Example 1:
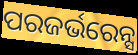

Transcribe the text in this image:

ପରଜର୍ଭରେନ୍ସ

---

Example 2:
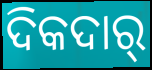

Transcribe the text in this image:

ଦିକଦାର୍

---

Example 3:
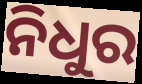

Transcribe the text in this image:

ନିଧୁର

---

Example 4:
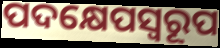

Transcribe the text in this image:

ପଦକ୍ଷେପସ୍ଵରୂପ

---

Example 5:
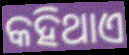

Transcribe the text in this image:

କହିଥାଏ